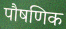
पौषणिक